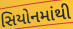
સિયોનમાંથી